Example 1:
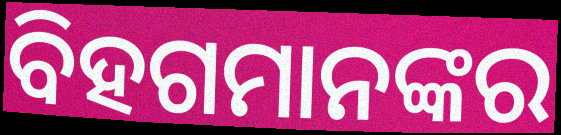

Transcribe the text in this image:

ବିହଗମାନଙ୍କର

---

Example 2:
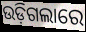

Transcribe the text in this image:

ଉଡ଼ିଗଲାରେ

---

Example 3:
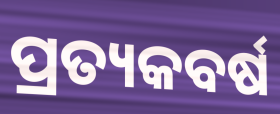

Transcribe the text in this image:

ପ୍ରତ୍ୟକବର୍ଷ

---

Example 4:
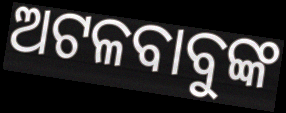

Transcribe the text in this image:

ଅଟଳବାବୁଙ୍କ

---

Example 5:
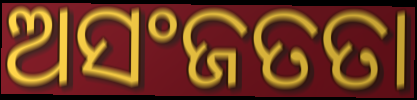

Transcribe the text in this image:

ଅସଂଜତତା